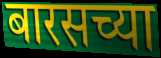
बारसच्या